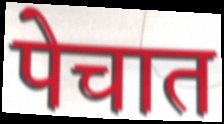
पेचात